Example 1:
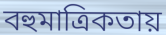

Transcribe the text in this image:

বহুমাত্রিকতায়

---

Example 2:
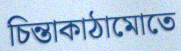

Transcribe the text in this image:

চিন্তাকাঠামোতে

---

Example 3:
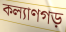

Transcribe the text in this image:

কল্যাণগড়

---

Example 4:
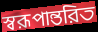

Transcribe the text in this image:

স্বরূপান্তরিত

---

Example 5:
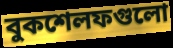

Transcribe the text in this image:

বুকশেলফগুলো